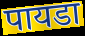
पायडा